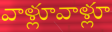
వాళ్లూవాళ్లూ